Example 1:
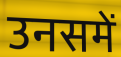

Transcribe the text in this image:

उनसमें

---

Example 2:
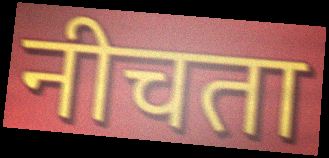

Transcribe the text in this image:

नीचता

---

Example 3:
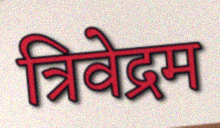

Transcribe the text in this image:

त्रिवेद्रम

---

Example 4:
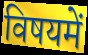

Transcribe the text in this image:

विषयमें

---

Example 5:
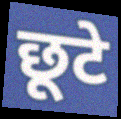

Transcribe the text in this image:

छूटे